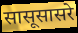
सासूसासरे